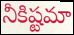
నీకిష్టమా